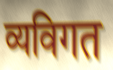
व्यविगत